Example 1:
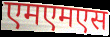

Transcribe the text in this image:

एमएमएस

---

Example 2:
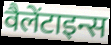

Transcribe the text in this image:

वैलेंटाइन्स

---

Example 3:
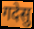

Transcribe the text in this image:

गदेसु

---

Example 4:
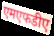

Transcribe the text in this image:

एमएफडीए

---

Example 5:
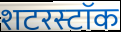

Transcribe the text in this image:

शटरस्‍टॉक